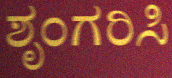
ಶೃಂಗರಿಸಿ